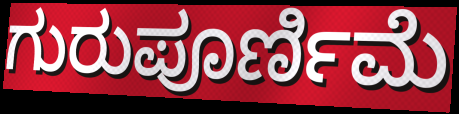
ಗುರುಪೂರ್ಣಿಮೆ